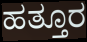
ಹತ್ತೂರ